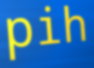
pih